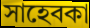
সাহেবকা